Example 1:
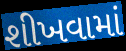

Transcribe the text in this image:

શીખવામાં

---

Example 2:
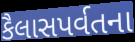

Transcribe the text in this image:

કૈલાસપર્વતના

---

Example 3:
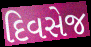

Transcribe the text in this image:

દિવસેજ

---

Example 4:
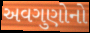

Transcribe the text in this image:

અવગુણોનો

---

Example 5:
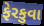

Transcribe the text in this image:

ફેરકુવા